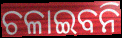
ଚଳାଇବନି